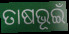
ତାଷଭୂଇଁ